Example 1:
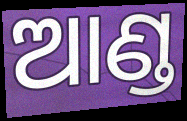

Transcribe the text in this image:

ଆଣ୍ଡ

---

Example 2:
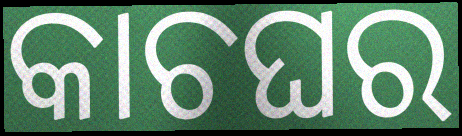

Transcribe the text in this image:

କାଚଘର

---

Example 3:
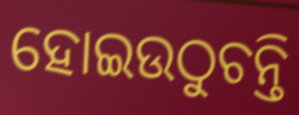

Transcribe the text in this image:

ହୋଇଉଠୁଚନ୍ତି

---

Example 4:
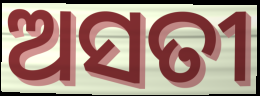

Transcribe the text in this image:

ଅସତୀ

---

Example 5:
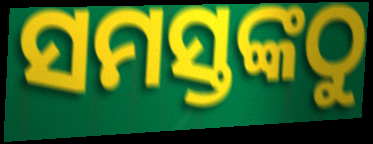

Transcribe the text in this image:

ସମସ୍ତଙ୍କଠୁ